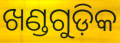
ଖଣ୍ଡଗୁଡ଼ିକ